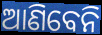
ଆଣିବେନି